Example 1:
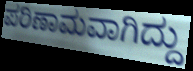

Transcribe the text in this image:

ಪರಿಣಾಮವಾಗಿದ್ದು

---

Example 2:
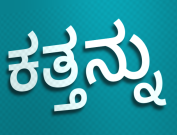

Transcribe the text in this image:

ಕತ್ತನ್ನು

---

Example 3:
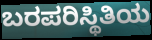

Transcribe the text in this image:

ಬರಪರಿಸ್ಥಿತಿಯ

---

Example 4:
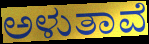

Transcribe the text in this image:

ಅಳುತಾವೆ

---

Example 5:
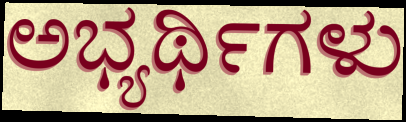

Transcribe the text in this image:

ಅಭ್ಯರ್ಥಿಗಳು